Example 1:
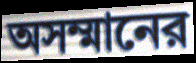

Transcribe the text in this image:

অসম্মানের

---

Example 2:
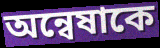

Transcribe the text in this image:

অন্বেষাকে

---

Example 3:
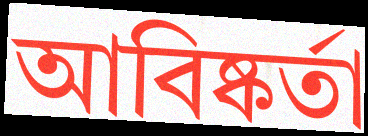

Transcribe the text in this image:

আবিষ্কর্তা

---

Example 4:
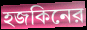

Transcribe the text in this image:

হজকিনের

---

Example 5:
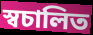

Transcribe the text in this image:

স্বচালিত